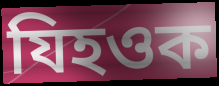
যিহওক